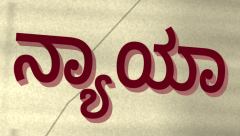
ನ್ಯಾಯಾ